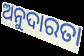
ଅନୁଦାରତା